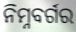
ନିମ୍ନବର୍ଗର